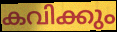
കവിക്കും